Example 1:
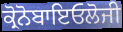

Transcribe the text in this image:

ਕ੍ਰੋਨੋਬਾਇਓਲੋਜੀ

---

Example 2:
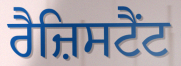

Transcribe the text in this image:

ਰੈਜ਼ਿਸਟੈਂਟ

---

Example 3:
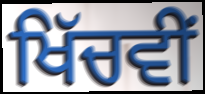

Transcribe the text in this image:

ਖਿੱਚਵੀਂ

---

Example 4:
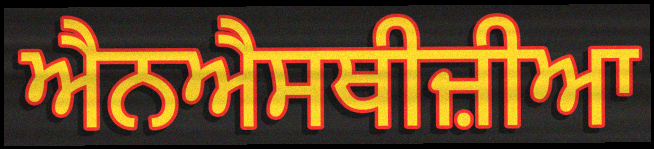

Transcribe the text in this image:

ਐਨਐਸਥੀਜ਼ੀਆ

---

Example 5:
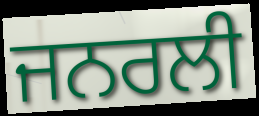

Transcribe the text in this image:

ਜਨਰਲੀ